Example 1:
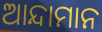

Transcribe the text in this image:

ଆନ୍ଦାମାନ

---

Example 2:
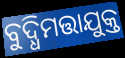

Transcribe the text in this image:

ବୁଦ୍ଧିମତ୍ତାଯୁକ୍ତ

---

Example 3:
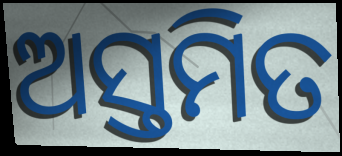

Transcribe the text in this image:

ଅସ୍ତମିତ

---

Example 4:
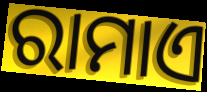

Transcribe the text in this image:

ରାମାଏ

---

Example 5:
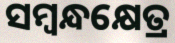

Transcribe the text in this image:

ସମ୍ବନ୍ଧକ୍ଷେତ୍ର